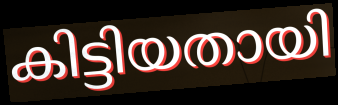
കിട്ടിയതായി